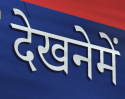
देखनेमें